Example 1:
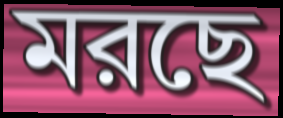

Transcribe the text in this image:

মরছে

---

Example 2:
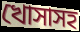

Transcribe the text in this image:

খোসাসহ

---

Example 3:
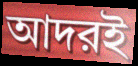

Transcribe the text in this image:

আদরই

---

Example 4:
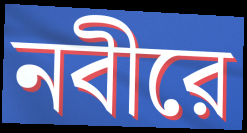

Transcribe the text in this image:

নবীরে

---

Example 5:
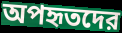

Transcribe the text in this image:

অপহৃতদের